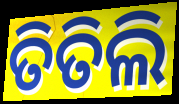
ତିତିଲି